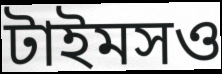
টাইমসও